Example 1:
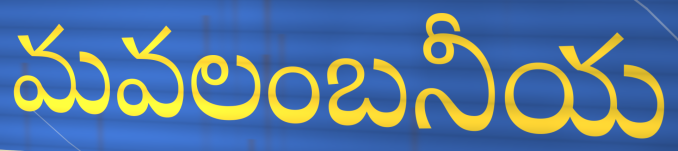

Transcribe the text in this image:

మవలంబనీయ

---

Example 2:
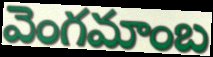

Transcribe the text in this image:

వెంగమాంబ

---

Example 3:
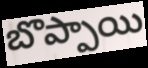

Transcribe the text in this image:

బొప్పాయి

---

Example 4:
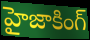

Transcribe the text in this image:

హైజాకింగ్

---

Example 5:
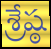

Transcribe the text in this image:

శ్రేష్ఠ